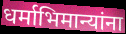
धर्माभिमान्यांना